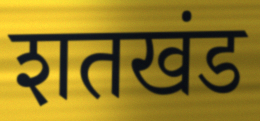
शतखंड